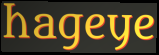
hageye